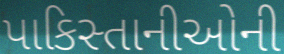
પાકિસ્તાનીઓની